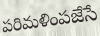
పరిమళింపజేసే